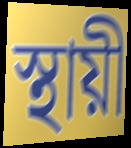
স্থায়ী